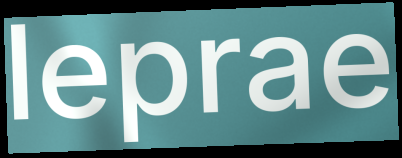
leprae